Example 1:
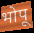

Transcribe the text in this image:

भोपू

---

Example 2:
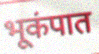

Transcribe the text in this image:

भूकंपात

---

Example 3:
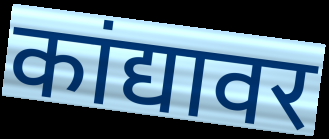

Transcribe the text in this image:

कांद्यावर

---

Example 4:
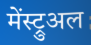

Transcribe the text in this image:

मेंस्ट्रुअल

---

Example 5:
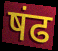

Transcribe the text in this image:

षंढ